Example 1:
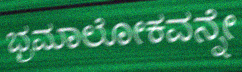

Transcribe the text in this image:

ಭ್ರಮಾಲೋಕವನ್ನೇ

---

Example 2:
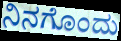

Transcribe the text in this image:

ನಿನಗೊಂದು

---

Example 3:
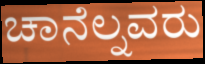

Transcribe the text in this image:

ಚಾನೆಲ್ನವರು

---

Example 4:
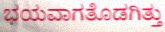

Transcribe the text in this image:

ಭಯವಾಗತೊಡಗಿತ್ತು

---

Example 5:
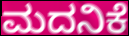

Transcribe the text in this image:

ಮದನಿಕೆ